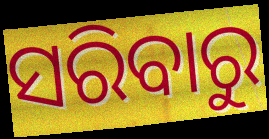
ସରିବାରୁ